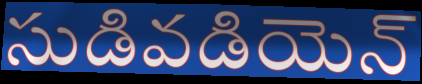
సుడివడియెన్